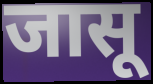
जासू